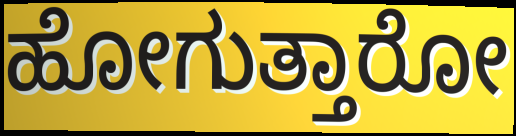
ಹೋಗುತ್ತಾರೋ